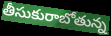
తీసుకురాబోతున్న